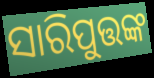
ସାରିପୁତ୍ତଙ୍କ